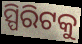
ସ୍ପିରିଟକୁ